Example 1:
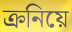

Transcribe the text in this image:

ক্রনিয়ে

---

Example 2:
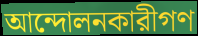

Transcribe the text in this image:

আন্দোলনকারীগণ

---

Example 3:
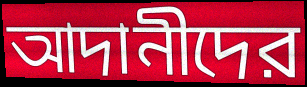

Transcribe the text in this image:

আদানীদের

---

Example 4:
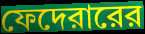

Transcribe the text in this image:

ফেদেরারের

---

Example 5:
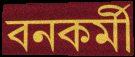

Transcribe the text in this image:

বনকর্মী